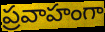
ప్రవాహంగా